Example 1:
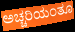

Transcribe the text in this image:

ಅಚ್ಚರಿಯಂತೂ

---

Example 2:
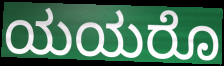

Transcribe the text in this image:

ಯಯರೊ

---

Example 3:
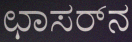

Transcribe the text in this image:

ಛಾಸರ್‌ನ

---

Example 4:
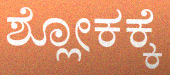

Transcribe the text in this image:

ಶ್ಲೋಕಕ್ಕೆ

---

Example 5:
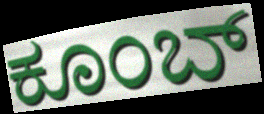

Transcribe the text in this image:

ಕೂಂಬ್